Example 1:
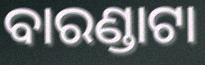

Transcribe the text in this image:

ବାରଣ୍ଡାଟା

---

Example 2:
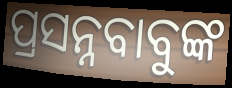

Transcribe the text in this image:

ପ୍ରସନ୍ନବାବୁଙ୍କ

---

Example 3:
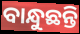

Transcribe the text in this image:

ବାନ୍ଧୁଛନ୍ତି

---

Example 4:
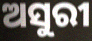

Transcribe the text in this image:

ଅସୁରୀ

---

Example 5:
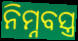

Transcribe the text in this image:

ନିମ୍ନବସ୍ତ୍ର